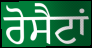
ਰੋਸੈਟਾਂ